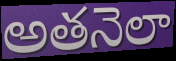
అతనెలా